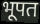
भूपत